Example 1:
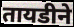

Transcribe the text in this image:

तायडीने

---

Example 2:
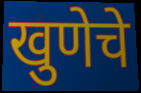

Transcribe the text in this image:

खुणेचे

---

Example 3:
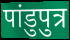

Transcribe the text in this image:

पांडुपुत्र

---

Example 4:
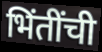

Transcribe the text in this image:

भिंतींची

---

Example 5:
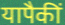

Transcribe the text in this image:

यापैकीं